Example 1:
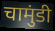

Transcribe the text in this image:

चामुंडी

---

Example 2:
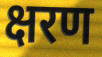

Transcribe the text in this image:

क्षरण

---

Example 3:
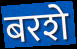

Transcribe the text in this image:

बरशे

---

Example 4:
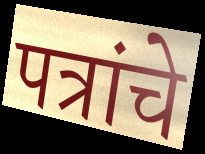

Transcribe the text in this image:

पत्रांचे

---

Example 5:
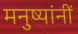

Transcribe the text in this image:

मनुष्यांनीं